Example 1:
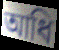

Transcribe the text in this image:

আধি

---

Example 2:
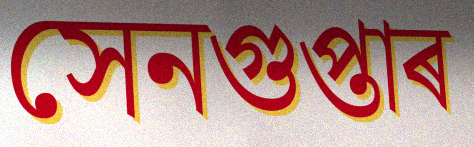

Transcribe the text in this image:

সেনগুপ্তাৰ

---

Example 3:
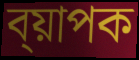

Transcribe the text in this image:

ব্য়াপক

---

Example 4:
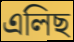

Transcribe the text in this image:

এলিছ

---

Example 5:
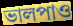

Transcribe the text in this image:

ভালপাও